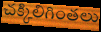
చక్కిలిగింతలు